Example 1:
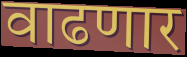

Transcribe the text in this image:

वाढणार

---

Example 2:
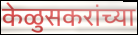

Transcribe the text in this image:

केळुसकरांच्या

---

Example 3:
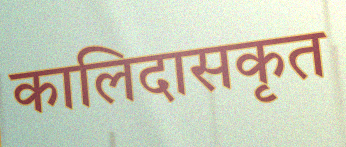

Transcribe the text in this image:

कालिदासकृत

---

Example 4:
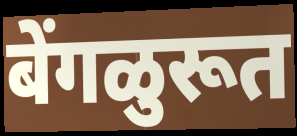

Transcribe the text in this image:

बेंगळुरूत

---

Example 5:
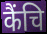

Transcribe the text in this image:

कैंचि